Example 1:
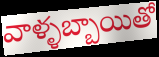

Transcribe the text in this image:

వాళ్ళబ్బాయితో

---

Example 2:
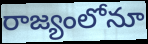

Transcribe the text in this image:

రాజ్యంలోనూ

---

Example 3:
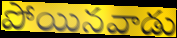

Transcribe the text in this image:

పోయినవాడు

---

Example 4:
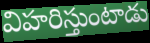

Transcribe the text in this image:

విహరిస్తుంటాడు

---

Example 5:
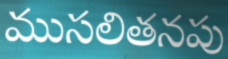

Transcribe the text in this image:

ముసలితనపు